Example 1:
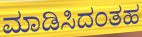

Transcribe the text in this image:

ಮಾಡಿಸಿದಂತಹ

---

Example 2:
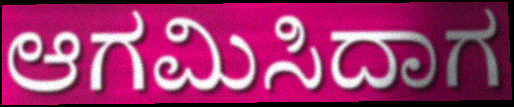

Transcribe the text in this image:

ಆಗಮಿಸಿದಾಗ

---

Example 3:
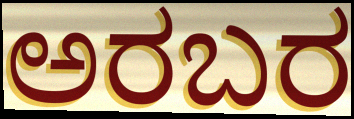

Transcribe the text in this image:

ಅರಬರ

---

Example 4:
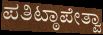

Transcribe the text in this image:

ಪತಿಟ್ಠಾಪೇತ್ವಾ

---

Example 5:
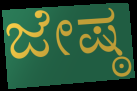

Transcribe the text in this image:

ಜೇಷ್ಠ